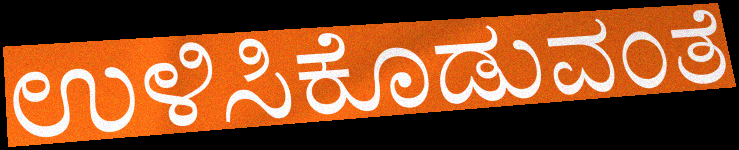
ಉಳಿಸಿಕೊಡುವಂತೆ